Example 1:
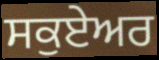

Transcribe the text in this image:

ਸਕੁਏਅਰ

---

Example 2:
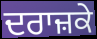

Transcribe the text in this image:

ਦਰਾਜ਼ਕੇ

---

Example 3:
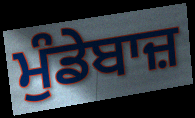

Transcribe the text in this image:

ਮੁੰਡੇਬਾਜ਼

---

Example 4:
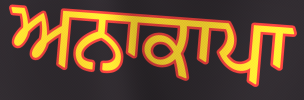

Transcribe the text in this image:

ਅਨਾਕਾਪਾ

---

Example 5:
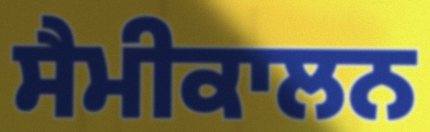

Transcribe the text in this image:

ਸੈਮੀਕਾਲਨ